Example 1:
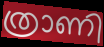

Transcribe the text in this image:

ത്രാണി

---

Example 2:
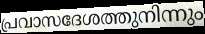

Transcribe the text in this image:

പ്രവാസദേശത്തുനിന്നും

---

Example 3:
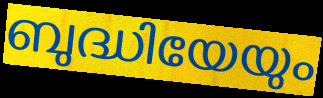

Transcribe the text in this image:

ബുദ്ധിയേയും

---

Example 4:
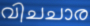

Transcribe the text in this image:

വിചചാര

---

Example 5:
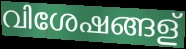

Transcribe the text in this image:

വിശേഷങ്ങള്